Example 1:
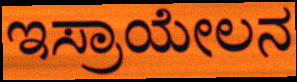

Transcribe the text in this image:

ಇಸ್ರಾಯೇಲನ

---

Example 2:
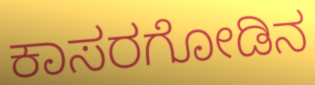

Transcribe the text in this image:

ಕಾಸರಗೋಡಿನ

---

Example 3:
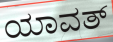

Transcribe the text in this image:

ಯಾವತ್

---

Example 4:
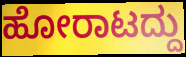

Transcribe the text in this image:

ಹೋರಾಟದ್ದು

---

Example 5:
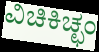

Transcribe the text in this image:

ವಿಚಿಕಿಚ್ಛಂ